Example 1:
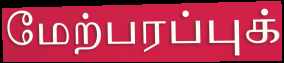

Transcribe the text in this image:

மேற்பரப்புக்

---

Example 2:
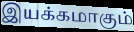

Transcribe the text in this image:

இயக்கமாகும்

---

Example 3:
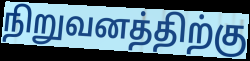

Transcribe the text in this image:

நிறுவனத்திற்கு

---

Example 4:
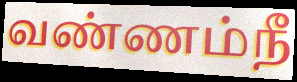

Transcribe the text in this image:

வண்ணம்நீ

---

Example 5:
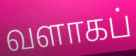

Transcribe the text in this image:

வளாகப்